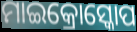
ମାଇକ୍ରୋସ୍କୋପ